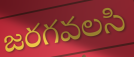
జరగవలసి